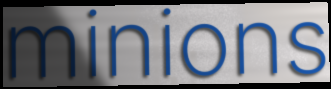
minions